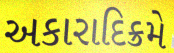
અકારાદિક્રમે